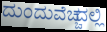
ದುಂದುವೆಚ್ಚದಲ್ಲಿ